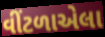
વીંટળાએલા